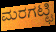
ಮರಗಟ್ಟಿ